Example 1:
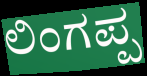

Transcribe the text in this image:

ಲಿಂಗಪ್ಪ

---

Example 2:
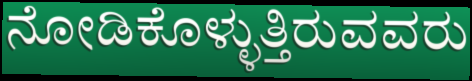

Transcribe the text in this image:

ನೋಡಿಕೊಳ್ಳುತ್ತಿರುವವರು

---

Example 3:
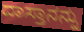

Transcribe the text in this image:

ದಾಸ್ತಾನನ್ನು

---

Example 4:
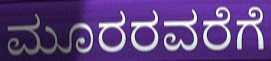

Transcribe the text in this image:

ಮೂರರವರೆಗೆ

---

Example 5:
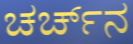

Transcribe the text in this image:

ಚರ್ಚ್‌ನ